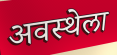
अवस्थेला